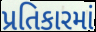
પ્રતિકારમાં